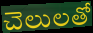
చెలులతో